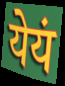
येयं